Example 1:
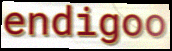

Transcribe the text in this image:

endigoo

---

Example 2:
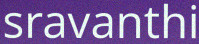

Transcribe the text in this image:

sravanthi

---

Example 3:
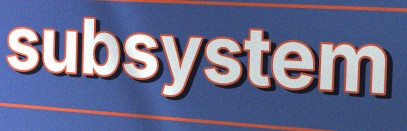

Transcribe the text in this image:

subsystem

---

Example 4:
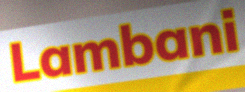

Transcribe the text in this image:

Lambani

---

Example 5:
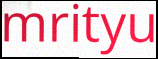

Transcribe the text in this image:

mrityu